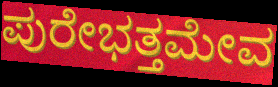
ಪುರೇಭತ್ತಮೇವ